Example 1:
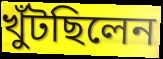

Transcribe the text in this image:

খুঁটছিলেন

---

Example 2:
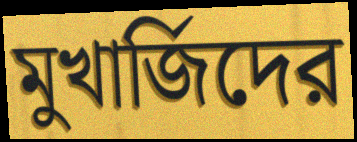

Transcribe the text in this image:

মুখার্জিদের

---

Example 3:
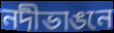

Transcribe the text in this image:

নদীভাঙনে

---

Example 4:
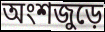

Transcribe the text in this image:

অংশজুড়ে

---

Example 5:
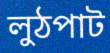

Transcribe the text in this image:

লুঠপাট